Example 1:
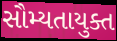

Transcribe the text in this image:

સૌમ્યતાયુક્ત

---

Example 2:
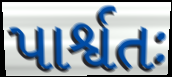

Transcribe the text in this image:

પાર્શ્વતઃ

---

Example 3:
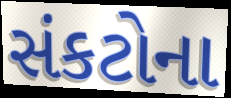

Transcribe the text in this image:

સંકટોના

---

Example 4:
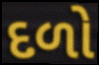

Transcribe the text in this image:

દળો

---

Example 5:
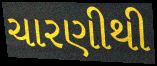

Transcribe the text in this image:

ચારણીથી